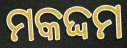
ମକଦ୍ଦମ